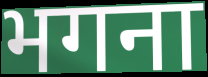
भगना